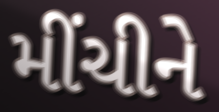
મીંચીને